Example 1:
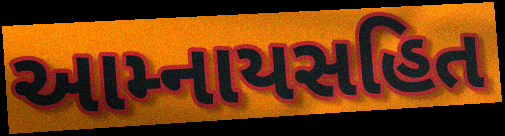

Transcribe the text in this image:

આમ્નાયસહિત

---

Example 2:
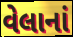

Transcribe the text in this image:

વેલાનાં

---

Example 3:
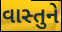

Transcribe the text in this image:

વાસ્તુને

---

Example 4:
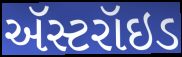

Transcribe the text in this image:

ઍસ્ટરૉઇડ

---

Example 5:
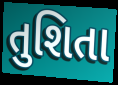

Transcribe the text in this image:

તુશિતા